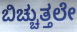
ಬಿಚ್ಚುತ್ತಲೇ